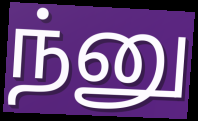
ந்னு